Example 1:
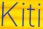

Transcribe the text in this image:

Kiti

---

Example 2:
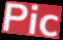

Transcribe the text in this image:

Pic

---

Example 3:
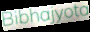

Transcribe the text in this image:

Bibhajyota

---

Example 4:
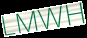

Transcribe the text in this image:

LMWH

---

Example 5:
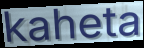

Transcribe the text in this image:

kaheta